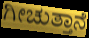
ಗೀಚುತ್ತಾನೆ